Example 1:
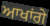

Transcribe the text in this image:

ਆਖਾਂਗੇ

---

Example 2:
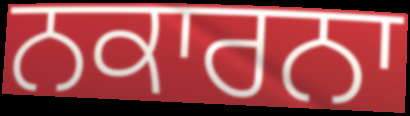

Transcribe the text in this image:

ਨਕਾਰਨਾ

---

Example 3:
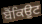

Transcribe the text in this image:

ਬੈਂਕਿਉਟ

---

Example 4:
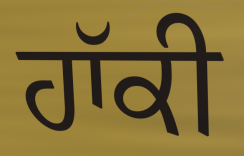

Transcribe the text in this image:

ਹਾੱਕੀ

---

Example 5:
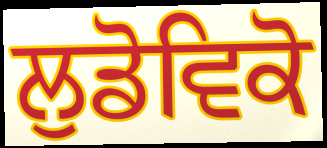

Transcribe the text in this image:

ਲੁਡੋਵਿਕੋ